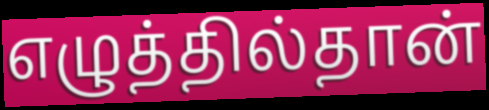
எழுத்தில்தான்